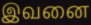
இவனை